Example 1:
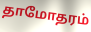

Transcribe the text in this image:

தாமோதரம்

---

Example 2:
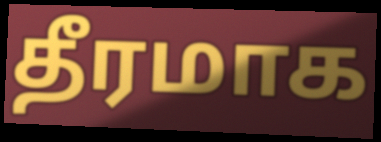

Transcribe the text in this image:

தீரமாக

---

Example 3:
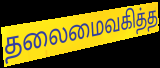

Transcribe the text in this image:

தலைமைவகித்த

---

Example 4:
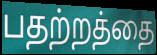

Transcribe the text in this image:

பதற்றத்தை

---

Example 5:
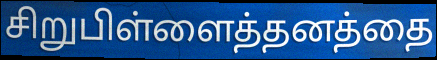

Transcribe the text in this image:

சிறுபிள்ளைத்தனத்தை